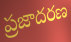
ప్రజాదరణ